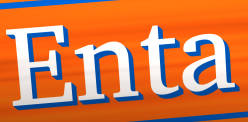
Enta